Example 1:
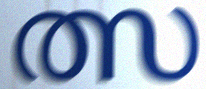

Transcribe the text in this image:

ത്സ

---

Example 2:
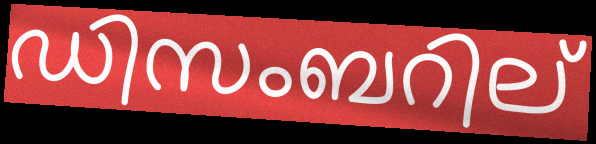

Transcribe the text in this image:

ഡിസംബറില്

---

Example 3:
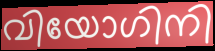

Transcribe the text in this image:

വിയോഗിനി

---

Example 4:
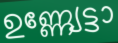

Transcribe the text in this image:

ഉണ്ണ്യേട്ടാ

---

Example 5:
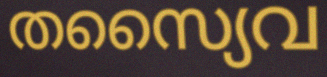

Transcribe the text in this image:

തസ്യൈവ